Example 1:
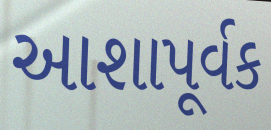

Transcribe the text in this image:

આશાપૂર્વક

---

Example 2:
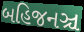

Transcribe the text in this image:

બહિજનઞ્ચ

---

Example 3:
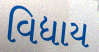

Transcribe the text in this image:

વિદ્યાય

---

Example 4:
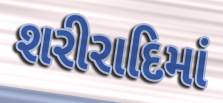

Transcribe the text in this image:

શરીરાદિમાં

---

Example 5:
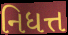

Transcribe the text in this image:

નિધત્ત